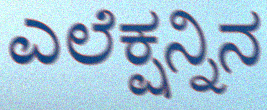
ಎಲೆಕ್ಷನ್ನಿನ